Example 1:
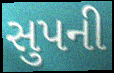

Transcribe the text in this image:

સુપની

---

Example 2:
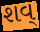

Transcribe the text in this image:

શવ્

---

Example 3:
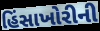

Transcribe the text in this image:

હિંસાખોરીની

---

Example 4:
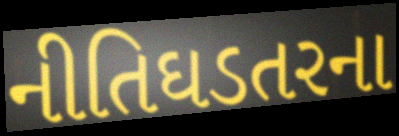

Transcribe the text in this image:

નીતિઘડતરના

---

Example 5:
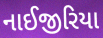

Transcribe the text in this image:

નાઈજીરિયા